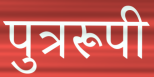
पुत्ररूपी